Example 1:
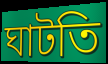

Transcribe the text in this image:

ঘাটতি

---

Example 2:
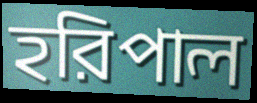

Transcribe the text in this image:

হরিপাল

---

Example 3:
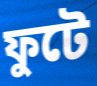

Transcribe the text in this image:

ফুটে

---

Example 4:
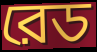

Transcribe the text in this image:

রেড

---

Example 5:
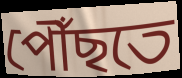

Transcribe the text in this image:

পৌঁছতে